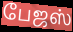
பேஜஸ்